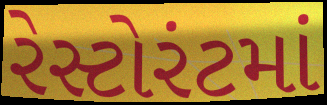
રેસ્ટોરંટમાં